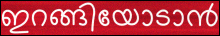
ഇറങ്ങിയോടാൻ